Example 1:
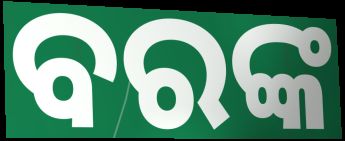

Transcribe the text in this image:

ବରଙ୍କ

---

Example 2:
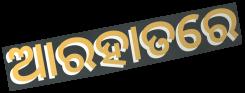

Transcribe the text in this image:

ଆରହାତରେ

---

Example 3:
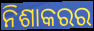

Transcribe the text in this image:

ନିଶାକରର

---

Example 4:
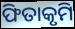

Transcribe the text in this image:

ଫିତାକୃମି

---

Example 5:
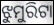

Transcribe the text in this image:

ଝୁମୁରିଟା